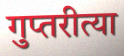
गुप्तरीत्या